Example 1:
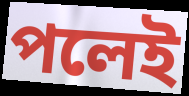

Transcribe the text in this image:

পলেই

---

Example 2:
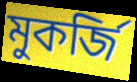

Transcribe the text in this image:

মুকর্জি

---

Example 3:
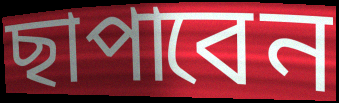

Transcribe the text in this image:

ছাপাবেন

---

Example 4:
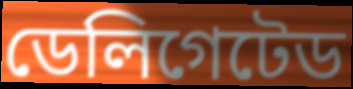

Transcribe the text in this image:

ডেলিগেটেড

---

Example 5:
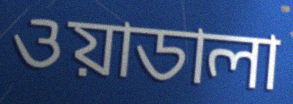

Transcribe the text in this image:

ওয়াডালা